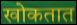
खोकतात